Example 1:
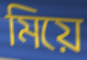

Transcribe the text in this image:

মিয়ে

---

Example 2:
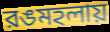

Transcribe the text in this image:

রঙমহলায়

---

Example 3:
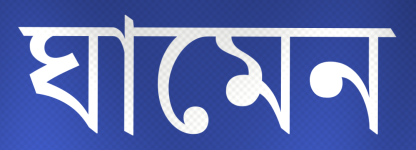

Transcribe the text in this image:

ঘামেন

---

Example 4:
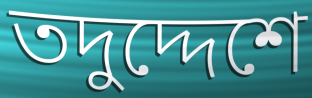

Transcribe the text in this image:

তদুদ্দেশে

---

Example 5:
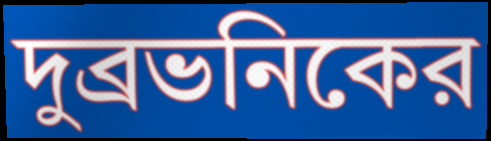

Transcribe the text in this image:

দুব্রভনিকের